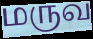
மருவ